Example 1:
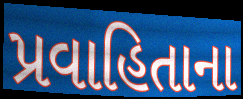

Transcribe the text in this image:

પ્રવાહિતાના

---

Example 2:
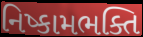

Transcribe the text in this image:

નિષ્કામભક્તિ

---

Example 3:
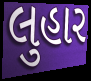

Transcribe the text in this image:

લુહાર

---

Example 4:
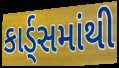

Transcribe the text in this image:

કાર્ડ્સમાંથી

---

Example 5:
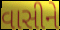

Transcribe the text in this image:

વાસીને